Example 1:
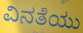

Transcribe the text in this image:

ವಿನತೆಯು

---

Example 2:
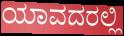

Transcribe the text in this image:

ಯಾವದರಲ್ಲಿ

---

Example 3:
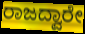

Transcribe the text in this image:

ರಾಜದ್ವಾರೇ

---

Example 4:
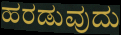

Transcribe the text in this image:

ಹರಡುವುದು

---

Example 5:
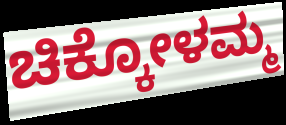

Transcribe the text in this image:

ಚಿಕ್ಕೋಳಮ್ಮ